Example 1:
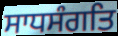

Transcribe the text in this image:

ਸਾਧਸੰਗਤਿ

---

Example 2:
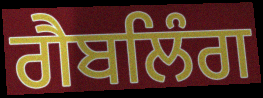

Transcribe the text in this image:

ਗੈਬਲਿੰਗ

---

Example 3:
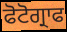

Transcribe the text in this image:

ਫੋਟੋਗ੍ਰਾਫ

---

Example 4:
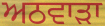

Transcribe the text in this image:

ਅਠਵਾੜਾ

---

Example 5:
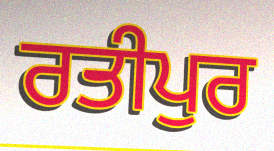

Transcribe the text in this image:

ਰਤੀਪੁਰ